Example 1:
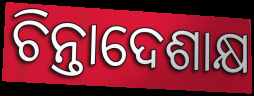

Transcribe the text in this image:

ଚିନ୍ତାଦେଶାକ୍ଷ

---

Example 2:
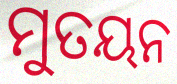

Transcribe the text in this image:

ମୁତୟନ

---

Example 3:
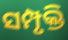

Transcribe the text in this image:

ସମ୍ପୃକ୍ତି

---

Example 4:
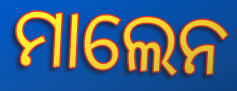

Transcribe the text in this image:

ମାଲେନ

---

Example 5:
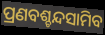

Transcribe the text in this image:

ପ୍ରଣବଶ୍ଚନ୍ଦସାମିବ